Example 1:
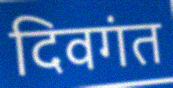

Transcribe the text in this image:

दिवगंत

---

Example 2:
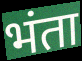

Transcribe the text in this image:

भंता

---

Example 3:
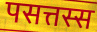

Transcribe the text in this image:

पसत्तस्स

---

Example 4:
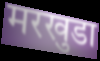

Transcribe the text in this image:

मरखुडा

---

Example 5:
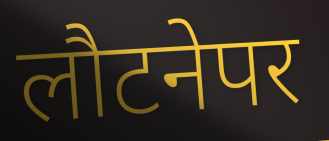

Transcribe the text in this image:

लौटनेपर